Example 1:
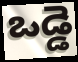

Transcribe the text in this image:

ఒడ్డె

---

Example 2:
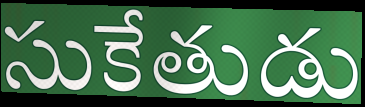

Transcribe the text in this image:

సుకేతుడు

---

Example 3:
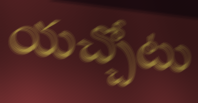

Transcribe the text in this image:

యచ్చోటు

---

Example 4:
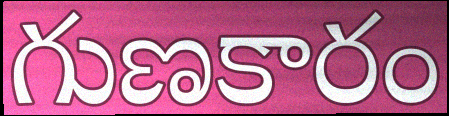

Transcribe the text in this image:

గుణకారం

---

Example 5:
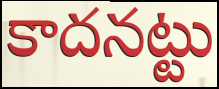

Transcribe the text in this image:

కాదనట్టు